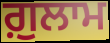
ਗ਼ੁਲਾਮ